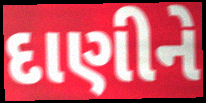
દાણીને